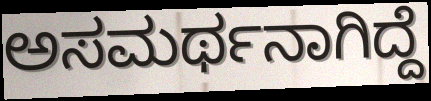
ಅಸಮರ್ಥನಾಗಿದ್ದೆ